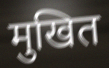
मुखित